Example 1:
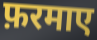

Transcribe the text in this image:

फ़रमाए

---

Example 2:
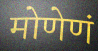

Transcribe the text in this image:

मोणेणं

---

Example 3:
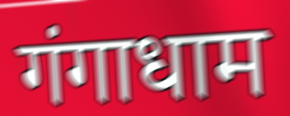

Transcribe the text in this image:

गंगाधाम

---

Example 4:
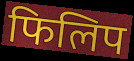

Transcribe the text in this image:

फिलिप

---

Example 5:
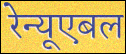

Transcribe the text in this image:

रेन्यूएबल